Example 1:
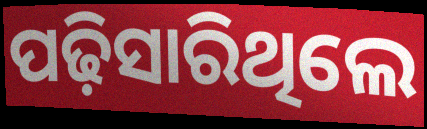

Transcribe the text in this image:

ପଢ଼ିସାରିଥିଲେ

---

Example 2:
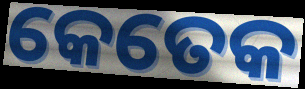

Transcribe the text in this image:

କେତେକ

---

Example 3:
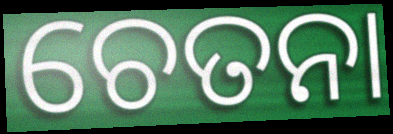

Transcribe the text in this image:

ଚେତନା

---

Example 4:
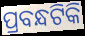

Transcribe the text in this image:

ପ୍ରବନ୍ଧଟିକି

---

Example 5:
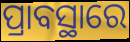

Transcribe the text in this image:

ପ୍ରାବସ୍ଥାରେ